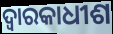
ଦ୍ୱାରକାଧୀଶ